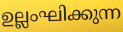
ഉല്ലംഘിക്കുന്ന